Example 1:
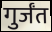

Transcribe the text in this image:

गुर्जंत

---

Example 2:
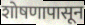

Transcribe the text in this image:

शोषणापासून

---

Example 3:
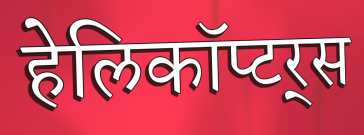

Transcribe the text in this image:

हेलिकॉप्टर्स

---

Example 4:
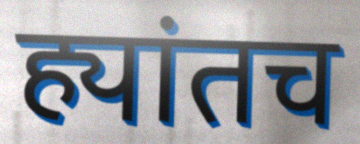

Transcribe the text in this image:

ह्यांतच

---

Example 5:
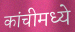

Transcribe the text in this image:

कांचीमध्ये